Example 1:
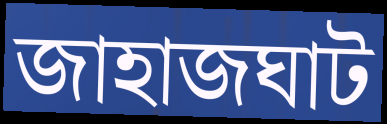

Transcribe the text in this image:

জাহাজঘাট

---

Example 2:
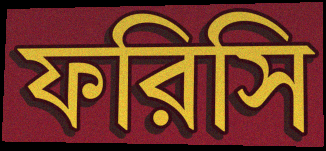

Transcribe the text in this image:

ফরিসি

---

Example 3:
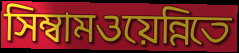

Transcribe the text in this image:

সিম্বামওয়েন্নিতে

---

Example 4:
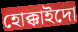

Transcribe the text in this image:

হোক্কাইদো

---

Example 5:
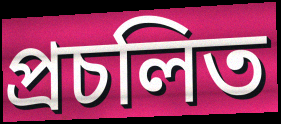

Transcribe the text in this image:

প্রচলিত